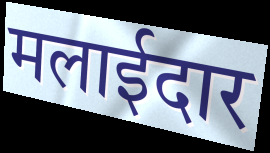
मलाईदार